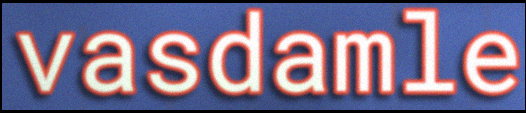
vasdamle